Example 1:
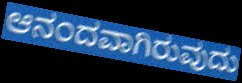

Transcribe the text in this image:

ಆನಂದವಾಗಿರುವುದು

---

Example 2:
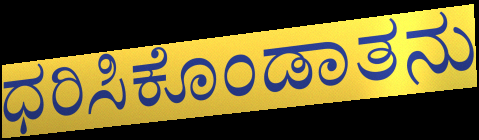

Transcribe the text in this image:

ಧರಿಸಿಕೊಂಡಾತನು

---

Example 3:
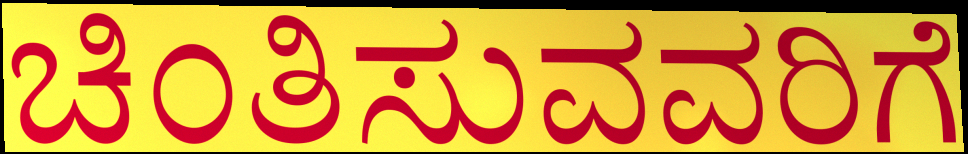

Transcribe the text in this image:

ಚಿಂತಿಸುವವರಿಗೆ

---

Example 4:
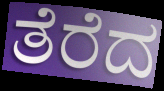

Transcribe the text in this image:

ತೆರೆದ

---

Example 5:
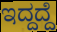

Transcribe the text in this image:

ಇದ್ದದ್ದೆ